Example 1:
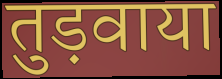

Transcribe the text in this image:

तुड़वाया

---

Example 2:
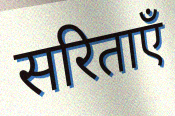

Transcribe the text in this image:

सरिताएँ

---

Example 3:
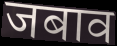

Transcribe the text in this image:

जबाव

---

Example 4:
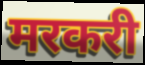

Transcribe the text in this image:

मरकरी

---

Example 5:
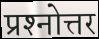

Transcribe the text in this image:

प्रश्‍नोत्तर